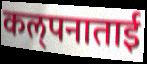
कल्पनाताई